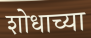
शोधाच्या